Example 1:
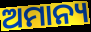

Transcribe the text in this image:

ଅମାନ୍ୟ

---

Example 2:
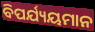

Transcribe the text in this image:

ବିପର୍ଯ୍ୟୟମାନ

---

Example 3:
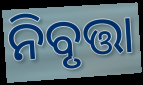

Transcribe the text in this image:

ନିବୃତ୍ତା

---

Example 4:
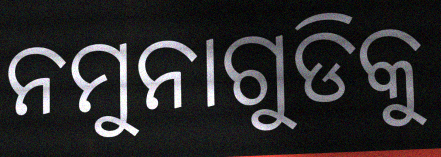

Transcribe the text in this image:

ନମୁନାଗୁଡିକୁ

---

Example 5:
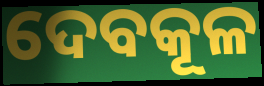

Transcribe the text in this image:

ଦେବକୂଳ